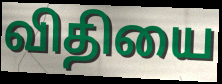
விதியை